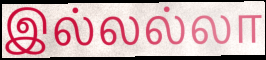
இல்லல்லா